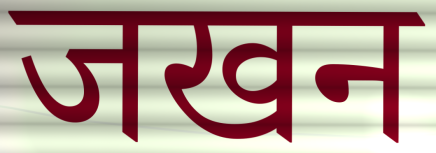
जखन